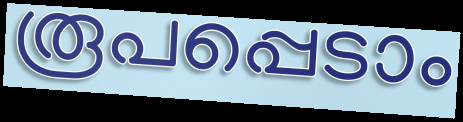
രൂപപ്പെടാം